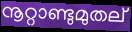
നൂറ്റാണ്ടുമുതല്